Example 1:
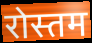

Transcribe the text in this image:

रोस्तम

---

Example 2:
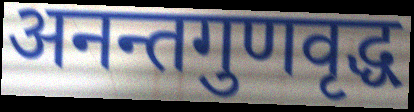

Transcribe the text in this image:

अनन्तगुणवृद्ध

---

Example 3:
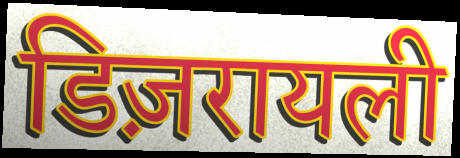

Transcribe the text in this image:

डिज़रायली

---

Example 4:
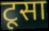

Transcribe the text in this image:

टूसा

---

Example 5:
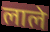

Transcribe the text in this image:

लाले